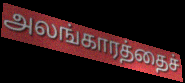
அலங்காரத்தைச்